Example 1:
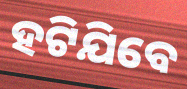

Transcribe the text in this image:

ହଟିଯିବେ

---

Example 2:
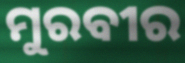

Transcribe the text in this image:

ମୁରବୀର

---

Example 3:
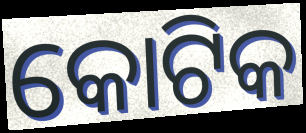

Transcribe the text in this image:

କୋଟିକ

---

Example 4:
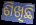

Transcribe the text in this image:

ଶିଖିଛି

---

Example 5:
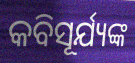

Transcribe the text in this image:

କବିସୂର୍ଯ୍ୟଙ୍କ